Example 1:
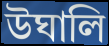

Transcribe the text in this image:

উঘালি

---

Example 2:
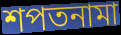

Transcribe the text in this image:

শপতনামা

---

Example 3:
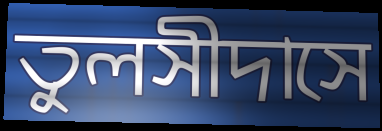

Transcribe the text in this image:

তুলসীদাসে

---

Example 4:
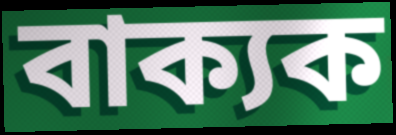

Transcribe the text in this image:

বাক্যক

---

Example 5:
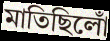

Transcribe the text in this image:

মাতিছিলোঁ